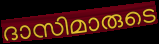
ദാസിമാരുടെ